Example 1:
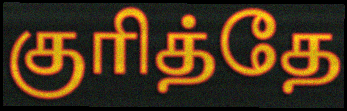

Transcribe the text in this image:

குரித்தே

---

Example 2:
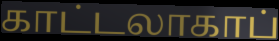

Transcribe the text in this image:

காட்டலாகாப்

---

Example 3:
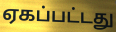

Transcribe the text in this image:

ஏகப்பட்டது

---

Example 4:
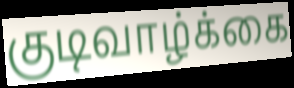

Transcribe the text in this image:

குடிவாழ்க்கை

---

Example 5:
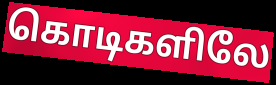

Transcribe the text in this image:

கொடிகளிலே